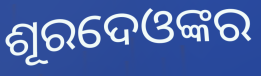
ଶୂରଦେଓଙ୍କର